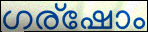
ഗര്ഷോം